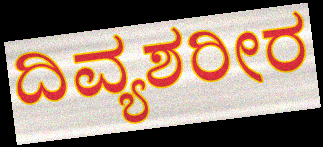
ದಿವ್ಯಶರೀರ